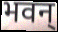
भवन्